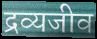
द्रव्यजीव